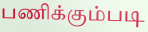
பணிக்கும்படி